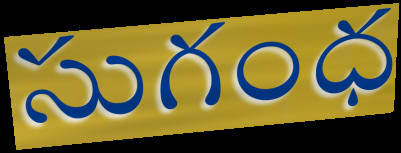
సుగంధ